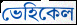
ভেহিকেল